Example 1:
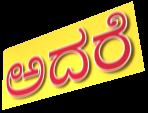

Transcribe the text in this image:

ಅದರೆ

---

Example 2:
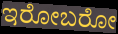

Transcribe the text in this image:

ಇರೋಬರೋ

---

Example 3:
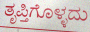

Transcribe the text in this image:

ತೃಪ್ತಿಗೊಳ್ಳದು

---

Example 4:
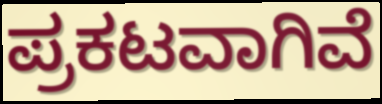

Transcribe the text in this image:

ಪ್ರಕಟವಾಗಿವೆ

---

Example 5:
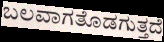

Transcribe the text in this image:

ಬಲವಾಗತೊಡಗುತ್ತದೆ